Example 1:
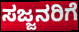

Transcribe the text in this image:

ಸಜ್ಜನರಿಗೆ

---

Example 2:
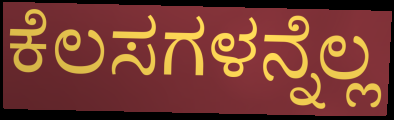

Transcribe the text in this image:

ಕೆಲಸಗಳನ್ನೆಲ್ಲ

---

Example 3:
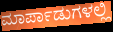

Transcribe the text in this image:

ಮಾರ್ಪಾಡುಗಳಲ್ಲಿ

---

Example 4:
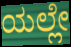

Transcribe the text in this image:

ಯಲ್ಲೇ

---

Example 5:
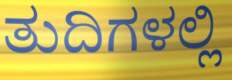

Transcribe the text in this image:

ತುದಿಗಳಲ್ಲಿ